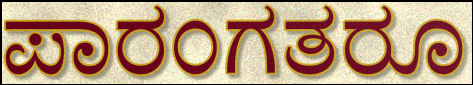
ಪಾರಂಗತರೂ